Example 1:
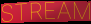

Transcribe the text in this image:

STREAM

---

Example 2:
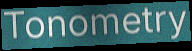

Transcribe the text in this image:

Tonometry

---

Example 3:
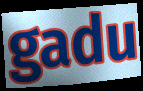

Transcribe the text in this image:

gadu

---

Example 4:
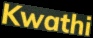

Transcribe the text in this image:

Kwathi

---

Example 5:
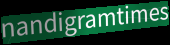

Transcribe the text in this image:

nandigramtimes